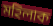
মহিলাক